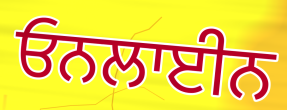
ਓਨਲਾਈਨ